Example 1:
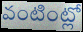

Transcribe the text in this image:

వంటింట్లో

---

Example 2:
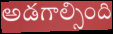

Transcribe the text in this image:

అడగాల్సింది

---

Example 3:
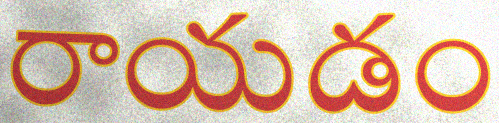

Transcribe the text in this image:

రాయడం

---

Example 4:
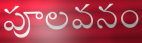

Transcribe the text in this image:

పూలవనం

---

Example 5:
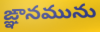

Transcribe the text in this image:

ఙ్ఞానమును